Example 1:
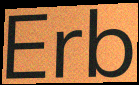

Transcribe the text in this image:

Erb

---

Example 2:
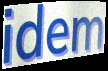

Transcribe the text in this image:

idem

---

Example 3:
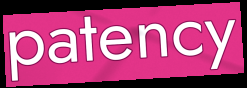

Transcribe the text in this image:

patency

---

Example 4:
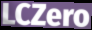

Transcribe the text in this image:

LCZero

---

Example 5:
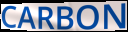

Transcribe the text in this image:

CARBON